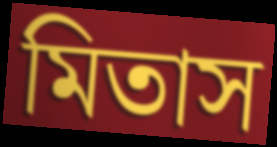
মিতাস